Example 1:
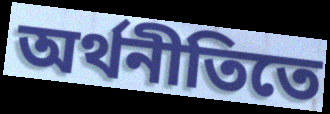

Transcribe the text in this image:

অর্থনীতিতে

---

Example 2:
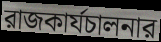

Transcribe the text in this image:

রাজকার্যচালনার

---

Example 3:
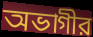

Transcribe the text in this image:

অভাগীর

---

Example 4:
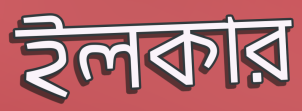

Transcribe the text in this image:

ইলকার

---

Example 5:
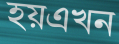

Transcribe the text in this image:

হয়এখন